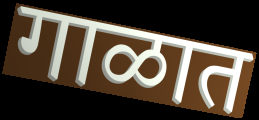
गाळात